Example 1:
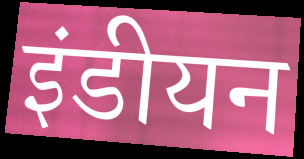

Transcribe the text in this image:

इंडीयन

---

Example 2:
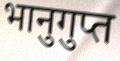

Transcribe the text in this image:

भानुगुप्त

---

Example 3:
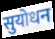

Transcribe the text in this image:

सुयोधन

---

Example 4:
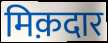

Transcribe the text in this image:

मिक़दार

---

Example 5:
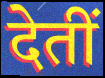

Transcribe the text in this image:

देतीं